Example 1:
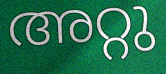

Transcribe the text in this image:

അറ്റു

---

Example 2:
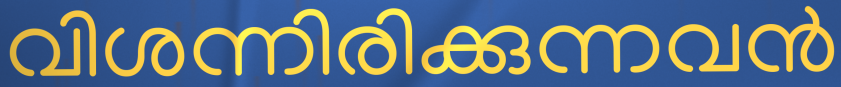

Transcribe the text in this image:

വിശന്നിരിക്കുന്നവൻ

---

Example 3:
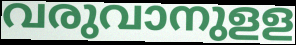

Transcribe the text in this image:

വരുവാനുളള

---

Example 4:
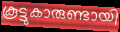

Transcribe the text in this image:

കൂട്ടുകാരുണ്ടായി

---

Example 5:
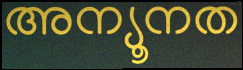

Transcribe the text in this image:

അന്യൂനത